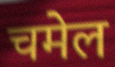
चमेल